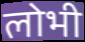
लोभी